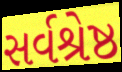
સર્વશ્રેષ્ઠ